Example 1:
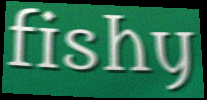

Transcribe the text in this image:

fishy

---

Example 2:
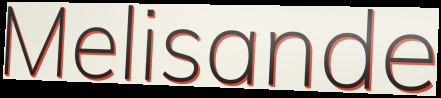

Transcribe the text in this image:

Melisande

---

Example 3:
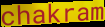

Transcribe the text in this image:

chakram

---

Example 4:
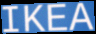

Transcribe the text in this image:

IKEA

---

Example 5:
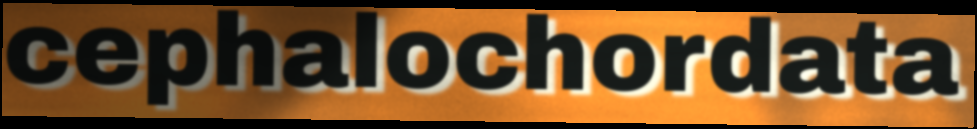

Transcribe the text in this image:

cephalochordata